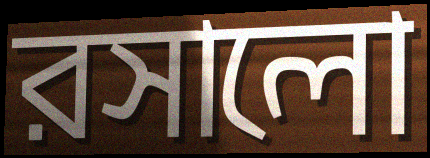
রসালো